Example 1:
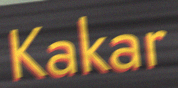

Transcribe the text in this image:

Kakar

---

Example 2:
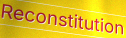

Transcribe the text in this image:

Reconstitution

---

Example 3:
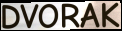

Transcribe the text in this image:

DVORAK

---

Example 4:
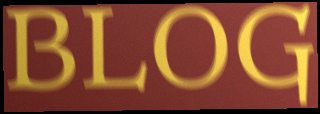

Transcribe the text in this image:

BLOG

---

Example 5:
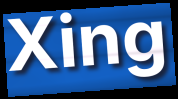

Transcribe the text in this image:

Xing